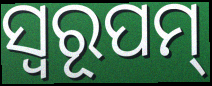
ସ୍ୱରୂପମ୍